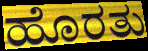
ಹೊರತು